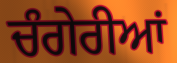
ਚੰਗੇਰੀਆਂ